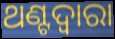
ଥଣ୍ଟଦ୍ୱାରା